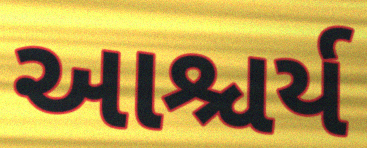
આશ્ચર્ય